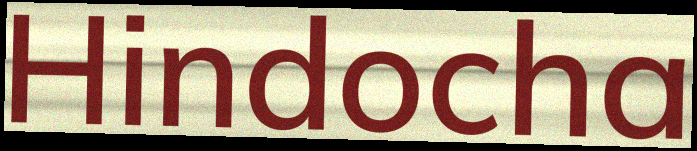
Hindocha